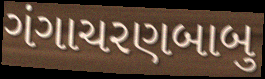
ગંગાચરણબાબુ